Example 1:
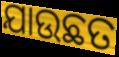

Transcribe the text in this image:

ଯାଉଛତ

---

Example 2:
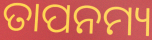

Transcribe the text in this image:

ତାପନମ୍ୟ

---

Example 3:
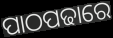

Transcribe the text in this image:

ପାଠପଢାରେ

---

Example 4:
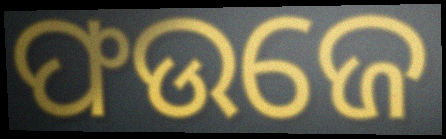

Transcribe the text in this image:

ଫଉଜେ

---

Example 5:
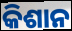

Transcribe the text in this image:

କିଶାନ